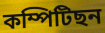
কম্পিটিছন